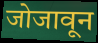
जोजावून